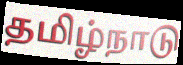
தமிழ்நாடு